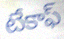
టేకాఫ్